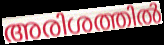
അരിശത്തിൽ